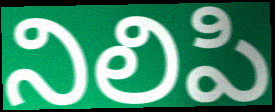
నిలిపి